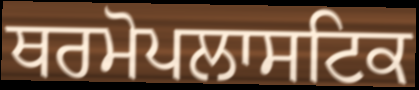
ਥਰਮੋਪਲਾਸਟਿਕ